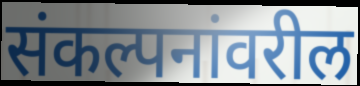
संकल्पनांवरील